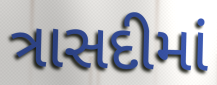
ત્રાસદીમાં